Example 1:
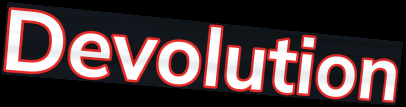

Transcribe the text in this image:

Devolution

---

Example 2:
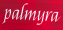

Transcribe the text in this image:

palmyra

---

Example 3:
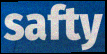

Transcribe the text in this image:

safty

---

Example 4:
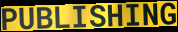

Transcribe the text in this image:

PUBLISHING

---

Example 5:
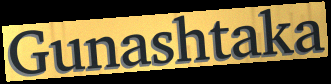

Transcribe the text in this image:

Gunashtaka